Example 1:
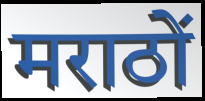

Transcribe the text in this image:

मराठों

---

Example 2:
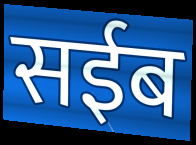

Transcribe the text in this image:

सईब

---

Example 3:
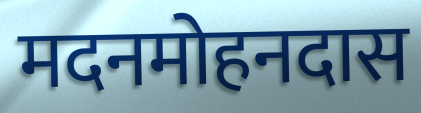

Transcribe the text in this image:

मदनमोहनदास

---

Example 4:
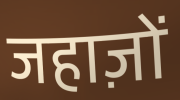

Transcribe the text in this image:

जहाज़ों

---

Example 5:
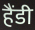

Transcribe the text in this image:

हैंडी